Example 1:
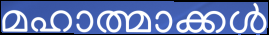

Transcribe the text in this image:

മഹാത്മാക്കൾ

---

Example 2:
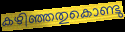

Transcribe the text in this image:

കഴിഞ്ഞതുകൊണ്ടു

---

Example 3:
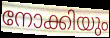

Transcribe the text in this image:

നോക്കിയും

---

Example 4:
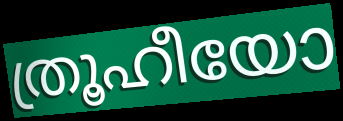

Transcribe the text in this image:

ത്രൂഹീയോ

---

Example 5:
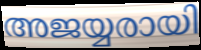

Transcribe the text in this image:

അജയ്യരായി